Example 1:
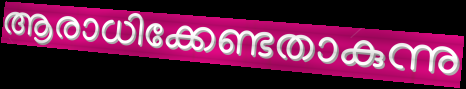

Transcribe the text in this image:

ആരാധിക്കേണ്ടതാകുന്നു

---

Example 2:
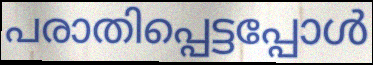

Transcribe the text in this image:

പരാതിപ്പെട്ടപ്പോൾ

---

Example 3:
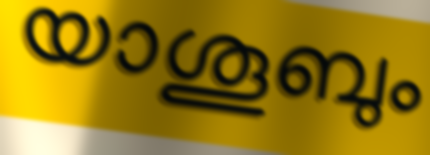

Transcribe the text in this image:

യാശൂബും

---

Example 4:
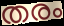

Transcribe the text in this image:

തരം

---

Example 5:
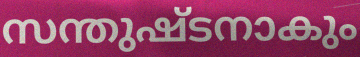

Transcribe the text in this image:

സന്തുഷ്ടനാകും